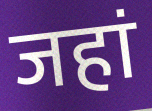
जहां